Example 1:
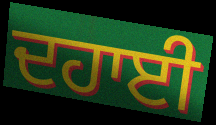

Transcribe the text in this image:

ਦਹਾਈ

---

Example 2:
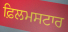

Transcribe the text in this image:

ਫ਼ਿਲਮਸਟਾਰ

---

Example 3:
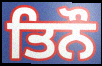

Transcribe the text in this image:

ਤਿਨੌ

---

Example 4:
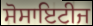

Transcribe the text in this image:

ਸੋਸਾਇਟੀਜ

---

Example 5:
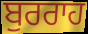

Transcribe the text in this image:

ਬੁਰਰਾਹ